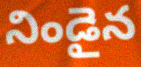
నిండైన